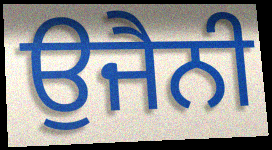
ਉਜੈਨੀ